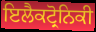
ਇਲੈਕਟ੍ਰੋਨਿਕੀ